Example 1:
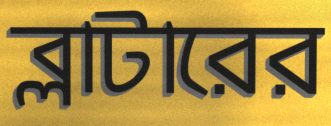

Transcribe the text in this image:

ব্লাটারের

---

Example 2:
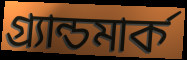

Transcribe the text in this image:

গ্র্যান্ডমার্ক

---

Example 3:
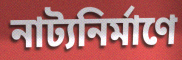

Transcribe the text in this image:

নাট্যনির্মাণে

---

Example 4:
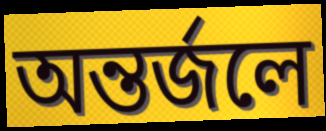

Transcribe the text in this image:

অন্তর্জলে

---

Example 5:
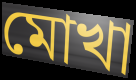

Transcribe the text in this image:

মোখা